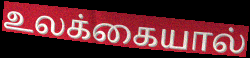
உலக்கையால்